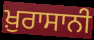
ਖ਼ੁਰਾਸਾਨੀ